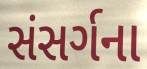
સંસર્ગના